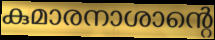
കുമാരനാശാന്റെ